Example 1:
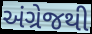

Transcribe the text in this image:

અંગ્રેજથી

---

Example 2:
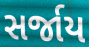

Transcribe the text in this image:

સર્જાય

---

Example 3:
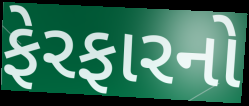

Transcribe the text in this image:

ફેરફારનો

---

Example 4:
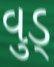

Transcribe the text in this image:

વુડ્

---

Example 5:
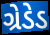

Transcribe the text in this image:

ગ્રેડેડ